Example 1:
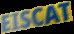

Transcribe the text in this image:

EISCAT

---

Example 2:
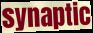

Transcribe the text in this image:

synaptic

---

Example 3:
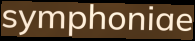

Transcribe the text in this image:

symphoniae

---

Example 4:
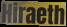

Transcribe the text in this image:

Hiraeth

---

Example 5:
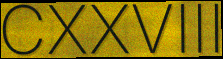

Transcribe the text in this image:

CXXVIII